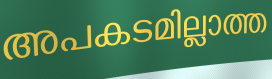
അപകടമില്ലാത്ത